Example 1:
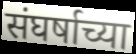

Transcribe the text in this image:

संघर्षाच्या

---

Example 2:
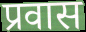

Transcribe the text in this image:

प्रवास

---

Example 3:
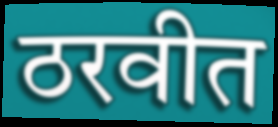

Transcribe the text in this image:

ठरवीत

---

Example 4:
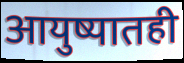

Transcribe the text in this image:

आयुष्यातही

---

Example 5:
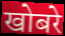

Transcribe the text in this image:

खोबरे